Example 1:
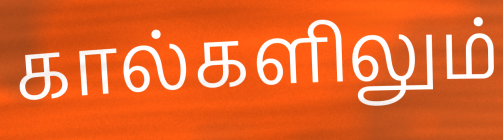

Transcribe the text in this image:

கால்களிலும்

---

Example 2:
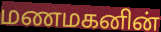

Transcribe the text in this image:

மணமகனின்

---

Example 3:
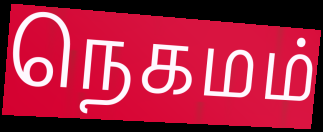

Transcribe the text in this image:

நெகமம்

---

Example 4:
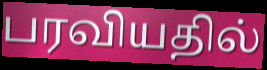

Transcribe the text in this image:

பரவியதில்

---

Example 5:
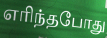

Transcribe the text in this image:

எரிந்தபோது